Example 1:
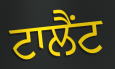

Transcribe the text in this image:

ਟਾਲੈਂਟ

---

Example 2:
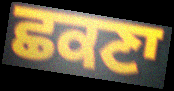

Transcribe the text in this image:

ਛਕਣਾ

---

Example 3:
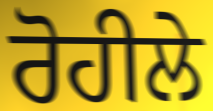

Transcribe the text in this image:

ਰੋਹੀਲੇ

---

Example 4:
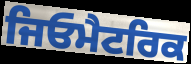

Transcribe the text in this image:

ਜਿਓਮੈਟਰਿਕ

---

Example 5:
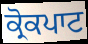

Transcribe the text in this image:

ਕ੍ਰੋਕਪਾਟ